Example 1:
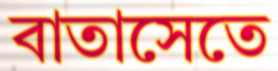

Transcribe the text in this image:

বাতাসেতে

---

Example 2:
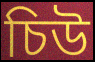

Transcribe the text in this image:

চিউ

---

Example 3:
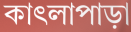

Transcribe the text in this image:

কাৎলাপাড়া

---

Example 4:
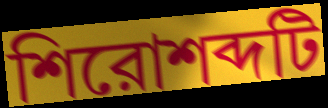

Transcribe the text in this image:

শিরোশব্দটি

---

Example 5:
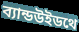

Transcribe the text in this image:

ব্যান্ডউইডথে